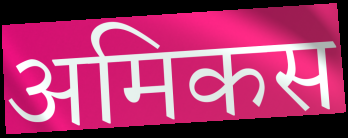
अमिकस